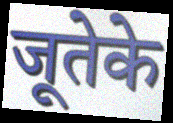
जूतेके